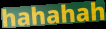
hahahah